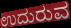
ಉದುರುವ